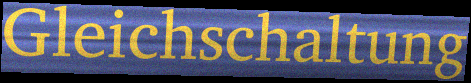
Gleichschaltung